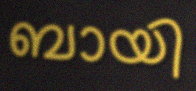
ബായി